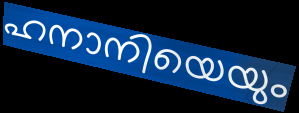
ഹനാനിയെയും